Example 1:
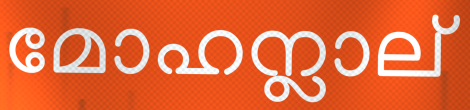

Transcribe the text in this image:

മോഹന്ലാല്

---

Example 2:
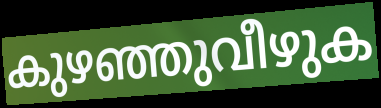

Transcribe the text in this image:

കുഴഞ്ഞുവീഴുക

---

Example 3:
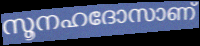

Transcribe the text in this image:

സൂനഹദോസാണ്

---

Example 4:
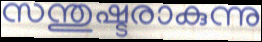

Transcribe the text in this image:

സന്തുഷ്ടരാകുന്നു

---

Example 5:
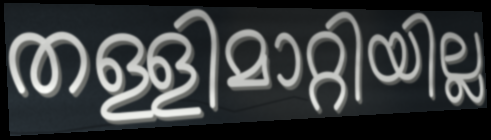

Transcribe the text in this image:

തള്ളിമാറ്റിയില്ല